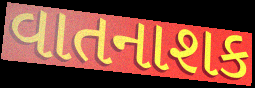
વાતનાશક